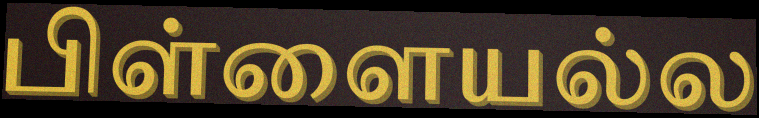
பிள்ளையல்ல